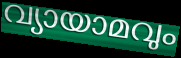
വ്യായാമവും